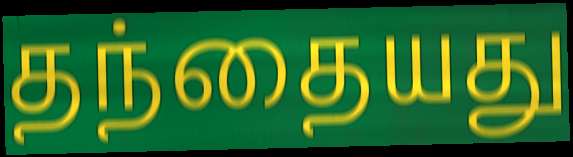
தந்தையது